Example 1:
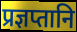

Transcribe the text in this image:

प्रज्ञप्तानि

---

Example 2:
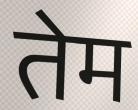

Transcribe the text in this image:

तेम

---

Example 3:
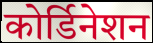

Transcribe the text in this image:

कोर्डिनेशन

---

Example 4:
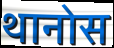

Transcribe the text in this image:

थानोस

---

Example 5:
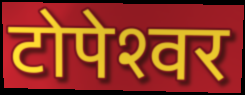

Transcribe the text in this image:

टोपेश्वर